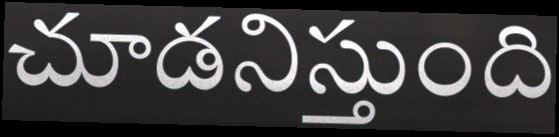
చూడనిస్తుంది